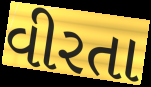
વીરતા